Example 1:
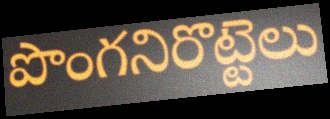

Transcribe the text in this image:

పొంగనిరొట్టెలు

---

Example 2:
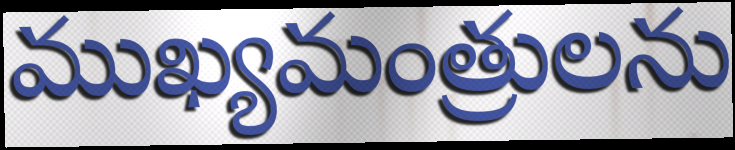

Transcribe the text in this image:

ముఖ్యమంత్రులను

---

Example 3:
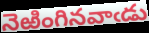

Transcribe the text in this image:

నెఱింగినవాఁడు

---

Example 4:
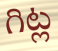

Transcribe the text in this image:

గిట్ల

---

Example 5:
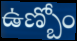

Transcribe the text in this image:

ఉణ్బోం